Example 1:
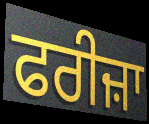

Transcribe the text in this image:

ਫਰੀਜ਼ਾ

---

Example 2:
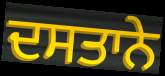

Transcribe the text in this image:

ਦਸਤਾਨੇ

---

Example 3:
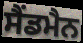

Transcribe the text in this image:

ਸੈਂਡਮੈਨ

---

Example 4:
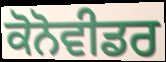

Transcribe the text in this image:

ਕੋਨੋਵੀਡਰ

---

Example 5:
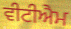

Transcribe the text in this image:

ਵੀਟੀਐਮ